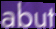
abut